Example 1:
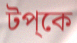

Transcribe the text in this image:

টপ্কে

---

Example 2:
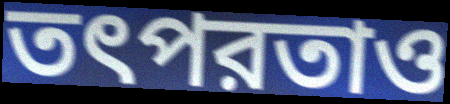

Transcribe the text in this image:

তৎপরতাও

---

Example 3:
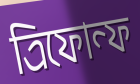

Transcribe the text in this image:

ত্রিফোন্ফ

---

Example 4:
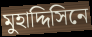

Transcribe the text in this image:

মুহাদ্দিসিনে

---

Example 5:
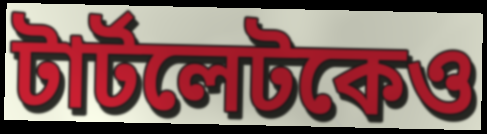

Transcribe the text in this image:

টার্টলেটকেও